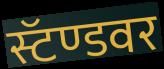
स्टॅण्डवर